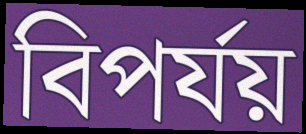
বিপৰ্যয়